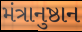
મંત્રાનુષ્ઠાન